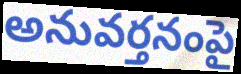
అనువర్తనంపై